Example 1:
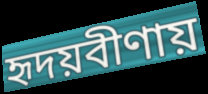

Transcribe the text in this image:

হৃদয়বীণায়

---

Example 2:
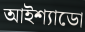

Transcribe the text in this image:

আইশ্যাডো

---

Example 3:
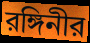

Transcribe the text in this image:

রঙ্গিনীর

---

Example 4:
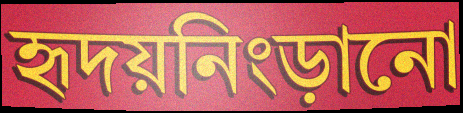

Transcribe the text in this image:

হৃদয়নিংড়ানো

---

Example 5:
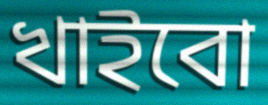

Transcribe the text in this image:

খাইবো